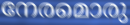
നേരമൊരു